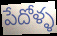
పేదోళ్ళ